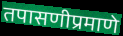
तपासणीप्रमाणे